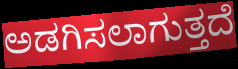
ಅಡಗಿಸಲಾಗುತ್ತದೆ